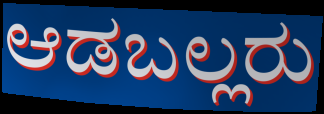
ಆಡಬಲ್ಲರು